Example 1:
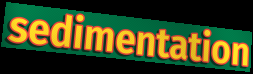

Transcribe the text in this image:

sedimentation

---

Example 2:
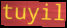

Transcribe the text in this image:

tuyil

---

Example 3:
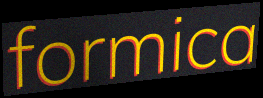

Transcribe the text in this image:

formica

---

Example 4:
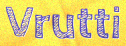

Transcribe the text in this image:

Vrutti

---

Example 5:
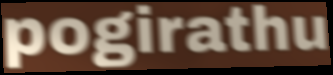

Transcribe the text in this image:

pogirathu